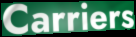
Carriers